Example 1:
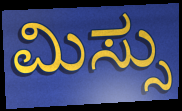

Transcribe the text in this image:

ಮಿಸ್ಸು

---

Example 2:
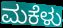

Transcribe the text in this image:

ಮಕೆಳು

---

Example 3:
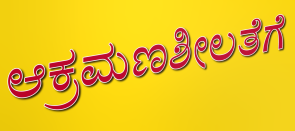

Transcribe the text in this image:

ಆಕ್ರಮಣಶೀಲತೆಗೆ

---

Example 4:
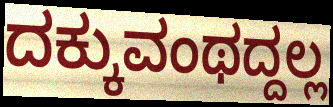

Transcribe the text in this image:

ದಕ್ಕುವಂಥದ್ದಲ್ಲ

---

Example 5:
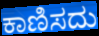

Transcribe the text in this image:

ಕಾಣಿಸದು